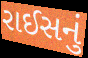
રાઈસનું